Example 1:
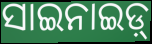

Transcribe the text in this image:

ସାଇନାଇଡ଼୍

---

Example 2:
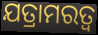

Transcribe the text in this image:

ଯତ୍ରାମରତ୍ଵ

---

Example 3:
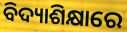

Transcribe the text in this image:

ବିଦ୍ୟାଶିକ୍ଷାରେ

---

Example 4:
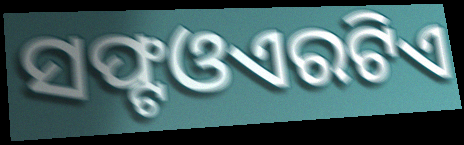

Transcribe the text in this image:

ସଫ୍ଟଓଏରଟିଏ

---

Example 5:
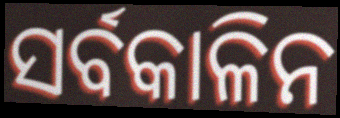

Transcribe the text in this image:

ସର୍ବକାଳିନ